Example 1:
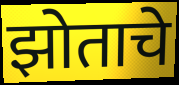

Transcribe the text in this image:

झोताचे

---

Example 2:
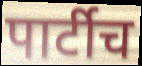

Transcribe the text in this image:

पार्टीच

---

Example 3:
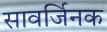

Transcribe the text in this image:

सावर्जिनक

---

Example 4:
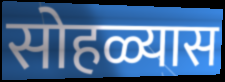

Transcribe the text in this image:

सोहळ्यास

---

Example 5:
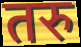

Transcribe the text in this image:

तरु